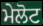
ਮੇਲੋਟ